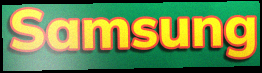
Samsung